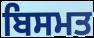
ਬਿਸਮਤ